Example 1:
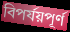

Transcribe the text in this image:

বিপর্যয়পূর্ণ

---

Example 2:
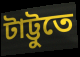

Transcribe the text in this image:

টাট্টুতে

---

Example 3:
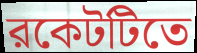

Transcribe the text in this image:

রকেটটিতে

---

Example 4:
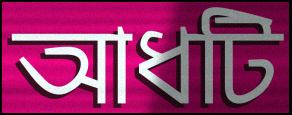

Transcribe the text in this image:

আধটি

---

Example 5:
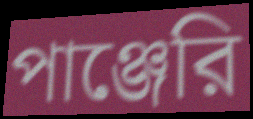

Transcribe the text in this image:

পাঞ্জেরি